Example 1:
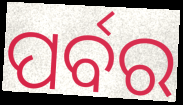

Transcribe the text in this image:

ପର୍ବର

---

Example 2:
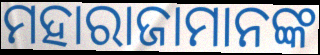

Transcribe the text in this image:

ମହାରାଜାମାନଙ୍କ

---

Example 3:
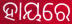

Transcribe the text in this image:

ହାୟରେ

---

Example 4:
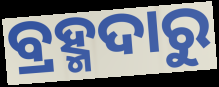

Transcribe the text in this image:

ବ୍ରହ୍ମଦାରୁ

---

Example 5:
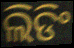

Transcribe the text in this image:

ଲିଡିଂ